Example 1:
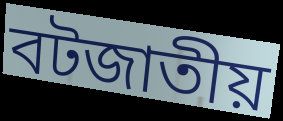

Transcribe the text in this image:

বটজাতীয়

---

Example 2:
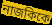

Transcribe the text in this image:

নাজকিকে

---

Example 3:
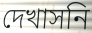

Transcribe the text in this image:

দেখাসনি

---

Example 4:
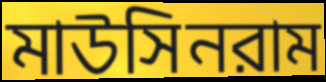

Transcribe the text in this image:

মাউসিনরাম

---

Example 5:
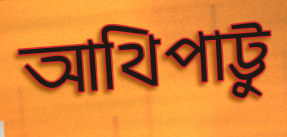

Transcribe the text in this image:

আথিপাট্টু